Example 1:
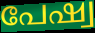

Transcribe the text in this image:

പേഷ്വ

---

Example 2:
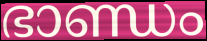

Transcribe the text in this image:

ഭാണ്ഡം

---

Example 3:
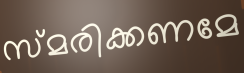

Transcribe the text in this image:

സ്മരിക്കണമേ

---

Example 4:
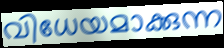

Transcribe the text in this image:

വിധേയമാക്കുന്ന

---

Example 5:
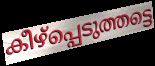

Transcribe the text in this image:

കീഴ്പ്പെടുത്തട്ടെ